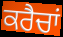
ਕਰੈਚਾਂ